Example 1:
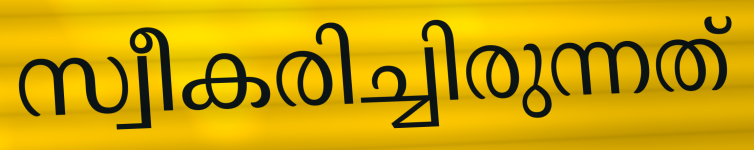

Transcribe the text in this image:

സ്വീകരിച്ചിരുന്നത്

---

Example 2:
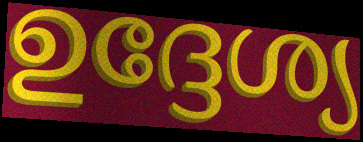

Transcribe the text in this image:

ഉദ്ദേശ്യ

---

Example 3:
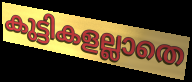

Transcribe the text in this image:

കുട്ടികളല്ലാതെ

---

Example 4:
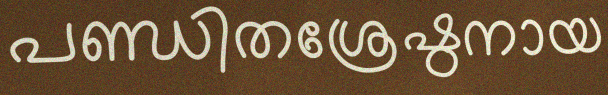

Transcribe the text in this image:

പണ്ഡിതശ്രേഷ്ഠനായ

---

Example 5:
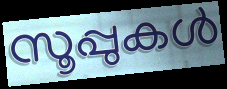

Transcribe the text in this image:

സൂപ്പുകൾ